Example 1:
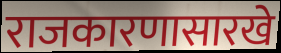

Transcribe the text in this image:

राजकारणासारखे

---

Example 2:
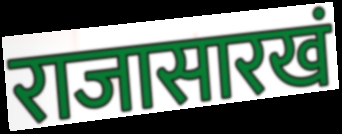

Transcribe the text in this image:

राजासारखं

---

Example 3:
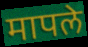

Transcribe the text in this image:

मापले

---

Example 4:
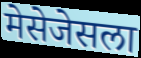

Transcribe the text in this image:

मेसेजेसला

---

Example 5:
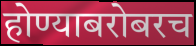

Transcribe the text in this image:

होण्याबरोबरच